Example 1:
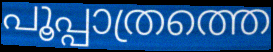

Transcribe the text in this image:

പൂപ്പാത്രത്തെ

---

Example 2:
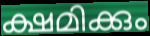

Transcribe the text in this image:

ക്ഷമിക്കും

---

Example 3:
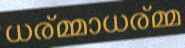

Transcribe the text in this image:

ധര്മ്മാധര്മ്മ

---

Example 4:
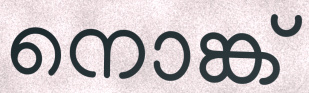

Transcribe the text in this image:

നൊങ്ക്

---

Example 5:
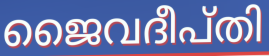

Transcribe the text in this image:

ജൈവദീപ്തി